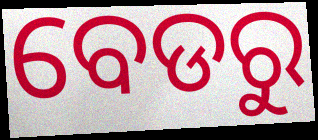
ବେଡରୁ